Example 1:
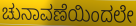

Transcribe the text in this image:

ಚುನಾವಣೆಯಿಂದಲೇ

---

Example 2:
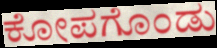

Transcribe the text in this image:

ಕೋಪಗೊಂಡು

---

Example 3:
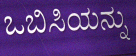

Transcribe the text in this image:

ಒಬಿಸಿಯನ್ನು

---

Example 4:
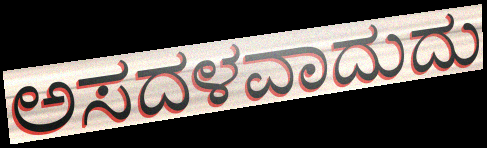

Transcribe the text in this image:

ಅಸದಳವಾದುದು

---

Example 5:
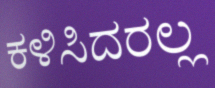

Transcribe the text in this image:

ಕಳಿಸಿದರಲ್ಲ